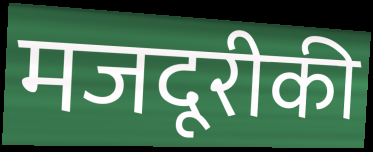
मजदूरीकी